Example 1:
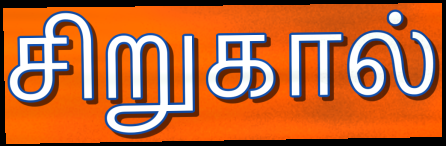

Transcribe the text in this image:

சிறுகால்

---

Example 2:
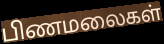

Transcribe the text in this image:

பிணமலைகள்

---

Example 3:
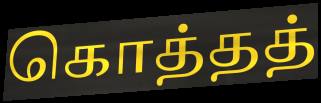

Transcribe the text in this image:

கொத்தத்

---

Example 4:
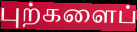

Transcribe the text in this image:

புற்களைப்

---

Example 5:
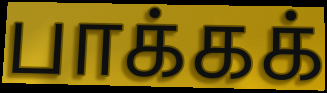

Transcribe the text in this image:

பாக்கக்